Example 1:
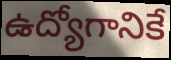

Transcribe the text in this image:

ఉద్యోగానికే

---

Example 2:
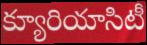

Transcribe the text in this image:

క్యూరియాసిటీ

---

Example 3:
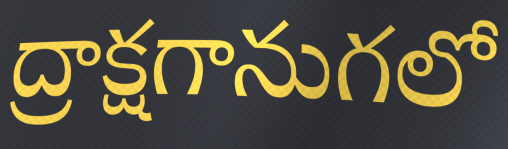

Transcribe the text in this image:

ద్రాక్షగానుగలో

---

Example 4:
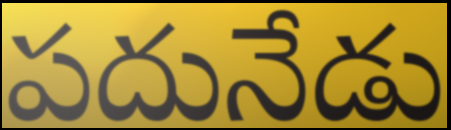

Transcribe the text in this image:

పదునేడు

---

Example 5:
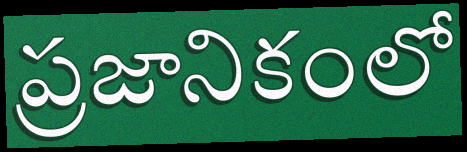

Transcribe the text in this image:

ప్రజానికంలో